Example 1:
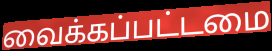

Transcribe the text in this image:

வைக்கப்பட்டமை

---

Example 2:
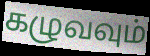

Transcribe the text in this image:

கழுவவும்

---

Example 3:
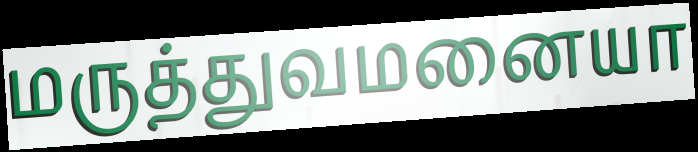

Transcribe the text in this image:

மருத்துவமனையா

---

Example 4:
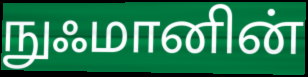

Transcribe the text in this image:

நுஃமானின்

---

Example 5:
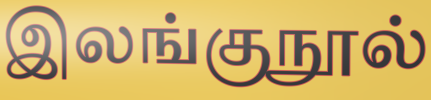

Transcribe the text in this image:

இலங்குநூல்